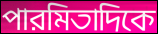
পারমিতাদিকে